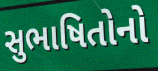
સુભાષિતોનો